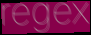
regex